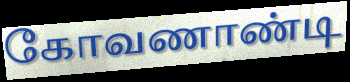
கோவணாண்டி